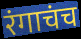
रंगाचंच